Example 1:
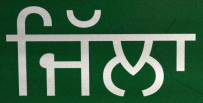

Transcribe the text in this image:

ਜਿੱਲਾ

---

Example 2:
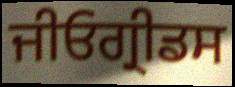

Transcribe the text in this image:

ਜੀਓਗ੍ਰੀਡਸ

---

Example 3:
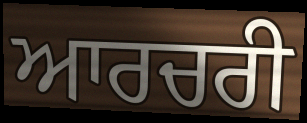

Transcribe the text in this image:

ਆਰਚਰੀ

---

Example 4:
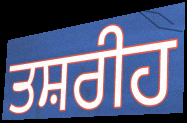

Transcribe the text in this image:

ਤਸ਼ਰੀਹ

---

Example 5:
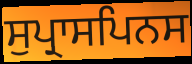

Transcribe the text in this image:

ਸੁਪ੍ਰਾਸਪਿਨਸ